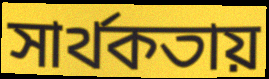
সার্থকতায়